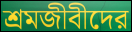
শ্রমজীবীদের